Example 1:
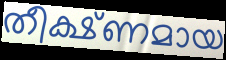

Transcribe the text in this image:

തീക്ഷ്ണമായ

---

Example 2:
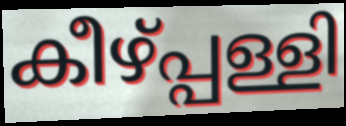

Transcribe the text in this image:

കീഴ്പ്പള്ളി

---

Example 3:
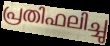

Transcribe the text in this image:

പ്രതിഫലിച്ചു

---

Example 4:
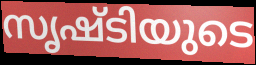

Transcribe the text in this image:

സൃഷ്ടിയുടെ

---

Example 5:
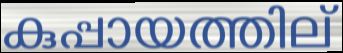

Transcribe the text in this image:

കുപ്പായത്തില്